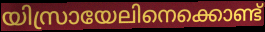
യിസ്രായേലിനെക്കൊണ്ട്